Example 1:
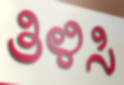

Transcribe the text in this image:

ತಿಳಿಸಿ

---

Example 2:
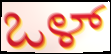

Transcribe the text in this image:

ಒಳ್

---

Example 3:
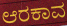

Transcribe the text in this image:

ಆರಕಾವ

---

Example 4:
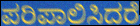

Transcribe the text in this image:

ಪರಿಪಾಲಿಸಿದರೆ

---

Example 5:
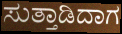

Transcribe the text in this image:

ಸುತ್ತಾಡಿದಾಗ